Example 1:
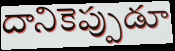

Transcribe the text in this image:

దానికెప్పుడూ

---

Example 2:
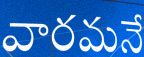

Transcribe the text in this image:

వారమనే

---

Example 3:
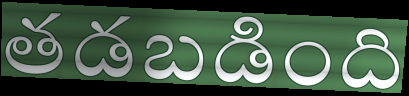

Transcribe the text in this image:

తడబడింది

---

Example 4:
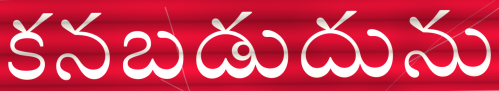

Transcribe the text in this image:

కనబడుదును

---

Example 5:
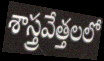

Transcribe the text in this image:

శాస్త్రవేత్తలలో